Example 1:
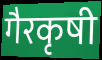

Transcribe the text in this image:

गैरकृषी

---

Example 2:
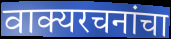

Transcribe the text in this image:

वाक्यरचनांचा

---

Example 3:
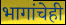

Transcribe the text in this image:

भागांचेही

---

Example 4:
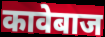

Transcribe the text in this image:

कावेबाज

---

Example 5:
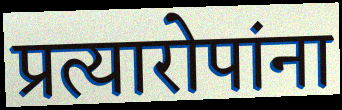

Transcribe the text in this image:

प्रत्यारोपांना